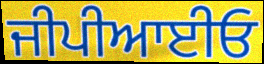
ਜੀਪੀਆਈਓ